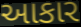
આકાર